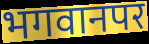
भगवानपर